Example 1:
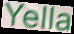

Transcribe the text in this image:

Yella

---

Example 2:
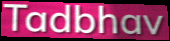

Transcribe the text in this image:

Tadbhav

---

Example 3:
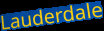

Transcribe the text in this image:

Lauderdale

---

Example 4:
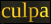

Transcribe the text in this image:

culpa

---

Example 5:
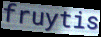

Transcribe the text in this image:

fruytis